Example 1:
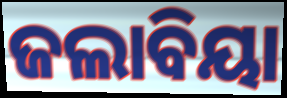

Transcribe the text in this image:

ଜଲାବିୟା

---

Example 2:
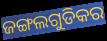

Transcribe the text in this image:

ଜଙ୍ଗଲଗୁଡିକର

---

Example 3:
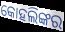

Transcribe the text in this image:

କୋହଲିଙ୍କର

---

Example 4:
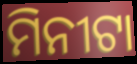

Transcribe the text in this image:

ମିନୀଟା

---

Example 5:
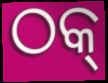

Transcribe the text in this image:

ଠକ୍